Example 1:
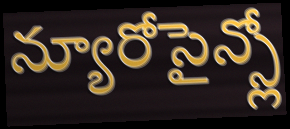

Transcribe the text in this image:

న్యూరోసైన్స్లో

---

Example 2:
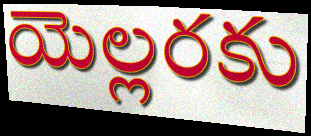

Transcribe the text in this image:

యెల్లరకు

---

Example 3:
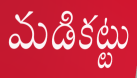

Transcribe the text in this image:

మడికట్టు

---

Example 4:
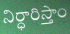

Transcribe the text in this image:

నిర్ధారిస్తాం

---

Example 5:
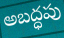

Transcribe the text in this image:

అబద్ధపు